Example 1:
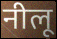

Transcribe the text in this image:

नीलू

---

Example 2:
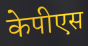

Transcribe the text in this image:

केपीएस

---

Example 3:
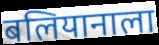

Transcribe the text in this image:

बलियानाला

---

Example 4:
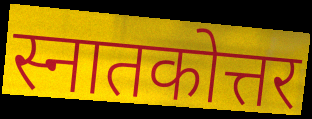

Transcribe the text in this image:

स्नातकोत्तर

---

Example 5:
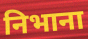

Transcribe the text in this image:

निभाना